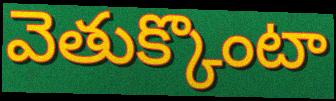
వెతుక్కొంటా